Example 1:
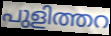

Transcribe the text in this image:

പുളിത്തറ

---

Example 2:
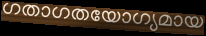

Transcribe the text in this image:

ഗതാഗതയോഗ്യമായ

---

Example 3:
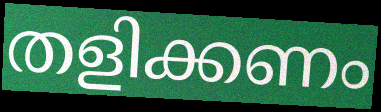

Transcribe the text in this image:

തളിക്കണം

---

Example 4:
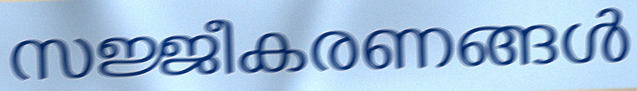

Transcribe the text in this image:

സജ്ജീകരണങ്ങൾ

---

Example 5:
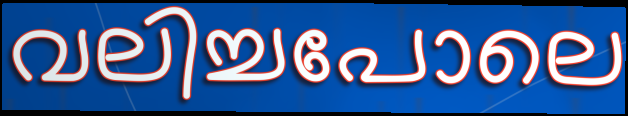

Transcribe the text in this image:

വലിച്ചപോലെ